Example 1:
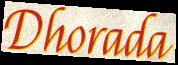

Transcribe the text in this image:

Dhorada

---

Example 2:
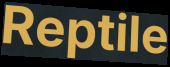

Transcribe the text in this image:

Reptile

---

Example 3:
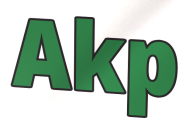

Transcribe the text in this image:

Akp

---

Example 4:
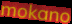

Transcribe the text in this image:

mokano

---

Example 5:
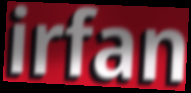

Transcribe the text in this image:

irfan